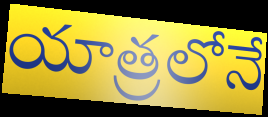
యాత్రలోనే